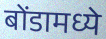
बोंडामध्ये